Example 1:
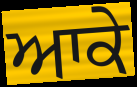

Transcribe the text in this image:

ਆਕੇ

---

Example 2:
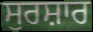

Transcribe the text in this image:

ਸੁਰਸ਼ਾਰ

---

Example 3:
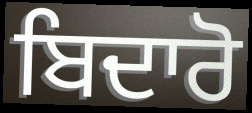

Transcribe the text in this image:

ਬਿਦਾਰੋ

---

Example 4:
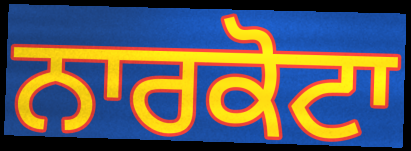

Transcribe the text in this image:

ਨਾਰਕੋਟਾ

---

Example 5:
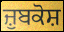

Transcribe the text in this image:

ਜ਼ੁਬਕੋਸ਼